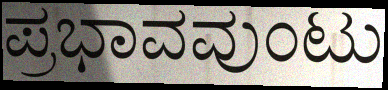
ಪ್ರಭಾವವುಂಟು